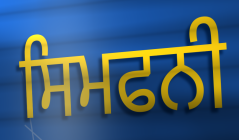
ਸਿਮਫਨੀ